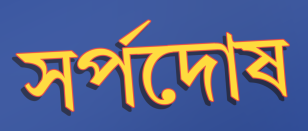
সর্পদোষ